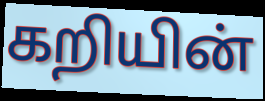
கறியின்